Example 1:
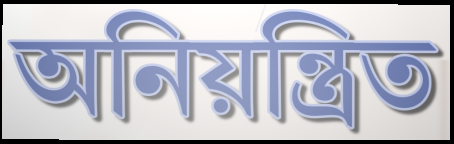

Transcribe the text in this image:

অনিয়ন্ত্ৰিত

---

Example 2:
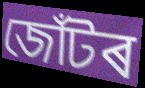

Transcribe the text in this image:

জোঁটৰ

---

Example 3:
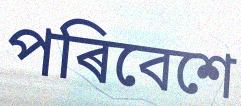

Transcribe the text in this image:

পৰিবেশে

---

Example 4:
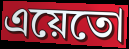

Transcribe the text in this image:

এয়েতো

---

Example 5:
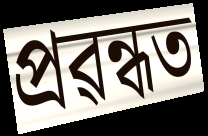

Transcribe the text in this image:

প্ৰৱন্ধত